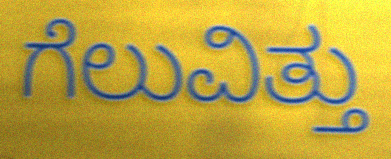
ಗೆಲುವಿತ್ತು